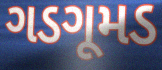
ગડગૂમડ